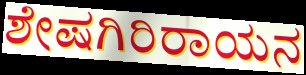
ಶೇಷಗಿರಿರಾಯನ